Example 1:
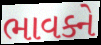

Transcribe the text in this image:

ભાવક્ને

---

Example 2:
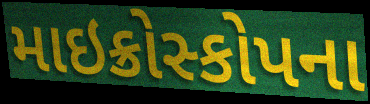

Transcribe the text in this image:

માઇક્રોસ્કોપના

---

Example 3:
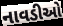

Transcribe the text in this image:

નાવડીઓ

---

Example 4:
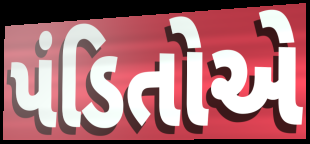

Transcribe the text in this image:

પંડિતોએ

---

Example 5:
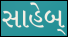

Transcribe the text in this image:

સાહેબ્